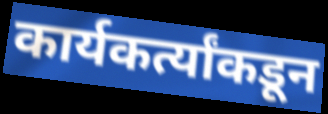
कार्यकर्त्यांकडून